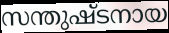
സന്തുഷ്ടനായ